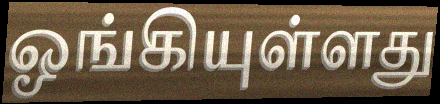
ஓங்கியுள்ளது